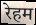
रेहम